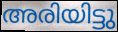
അരിയിട്ടു